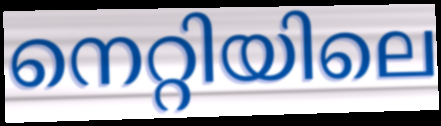
നെറ്റിയിലെ